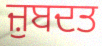
ਜ਼ੁਬਦਤ